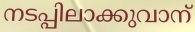
നടപ്പിലാക്കുവാന്